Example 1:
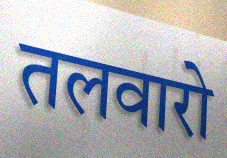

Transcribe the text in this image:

तलवारो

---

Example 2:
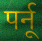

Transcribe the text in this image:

पर्नू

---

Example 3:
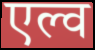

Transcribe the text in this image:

एल्व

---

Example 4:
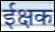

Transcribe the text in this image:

ईक्षक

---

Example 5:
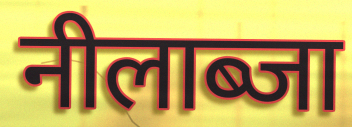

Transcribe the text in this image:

नीलाब्जा